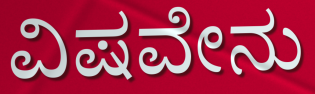
ವಿಷವೇನು